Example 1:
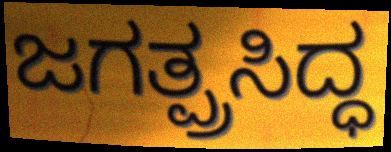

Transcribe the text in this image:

ಜಗತ್ಪ್ರಸಿದ್ಧ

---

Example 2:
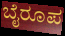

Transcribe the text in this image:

ಬೈರೂಪ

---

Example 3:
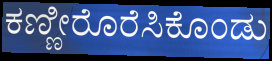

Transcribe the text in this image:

ಕಣ್ಣೀರೊರೆಸಿಕೊಂಡು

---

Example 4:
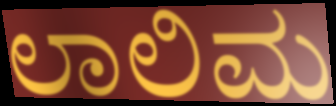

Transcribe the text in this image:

ಲಾಲಿಮ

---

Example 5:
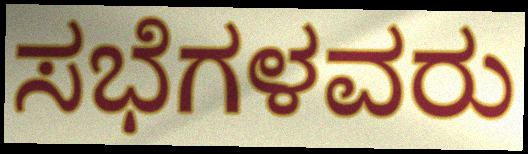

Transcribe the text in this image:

ಸಭೆಗಳವರು